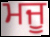
ਮਜੂ